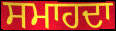
ਸਮਾਹਦਾ